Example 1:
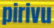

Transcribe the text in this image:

pirivu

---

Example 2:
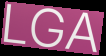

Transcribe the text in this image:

LGA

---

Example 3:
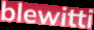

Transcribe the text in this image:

blewitti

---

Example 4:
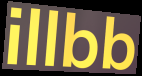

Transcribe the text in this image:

illbb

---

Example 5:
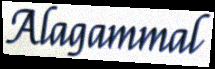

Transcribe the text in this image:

Alagammal